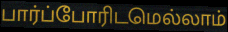
பார்ப்போரிடமெல்லாம்